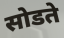
सोडते